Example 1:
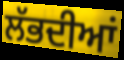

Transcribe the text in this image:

ਲੱਭਦੀਆਂ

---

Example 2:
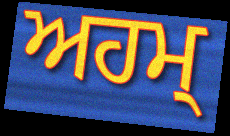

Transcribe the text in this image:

ਅਹਮ੍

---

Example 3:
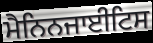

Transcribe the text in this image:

ਮੈਨਿਨਜਾਈਟਿਸ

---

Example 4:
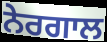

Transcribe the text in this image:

ਨੇਰਗਾਲ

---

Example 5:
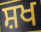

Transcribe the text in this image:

ਸ਼ਖ